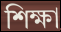
শিক্ষা